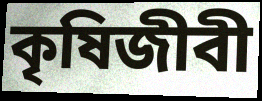
কৃষিজীবী